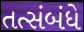
તત્સંબંધે